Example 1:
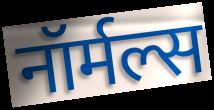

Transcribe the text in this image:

नॉर्मल्स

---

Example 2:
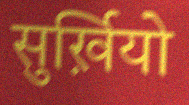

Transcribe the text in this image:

सुर्ख़ियो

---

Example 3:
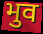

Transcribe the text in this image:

भुव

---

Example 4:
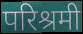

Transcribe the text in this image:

परिश्रमी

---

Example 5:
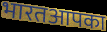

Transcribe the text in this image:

भारतआपका